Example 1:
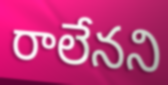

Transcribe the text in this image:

రాలేనని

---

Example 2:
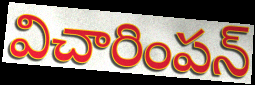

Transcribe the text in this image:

విచారింపన్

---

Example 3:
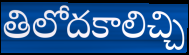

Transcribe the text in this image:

తిలోదకాలిచ్చి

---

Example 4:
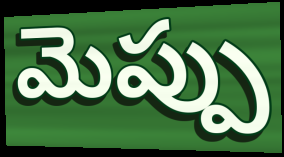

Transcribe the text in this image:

మెప్పు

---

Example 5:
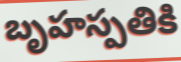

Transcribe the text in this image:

బృహస్పతికి